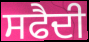
ਸਫੈਦੀ